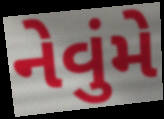
નેવુંમે